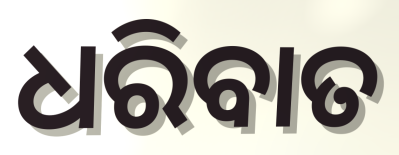
ଧରିବାତ